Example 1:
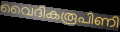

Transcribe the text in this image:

വൈദികരൂപിണി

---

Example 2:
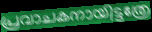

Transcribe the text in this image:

പ്രവാചകനായിട്ടത്രേ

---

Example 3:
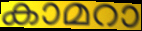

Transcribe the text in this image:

കാമറാ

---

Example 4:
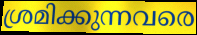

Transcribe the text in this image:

ശ്രമിക്കുന്നവരെ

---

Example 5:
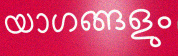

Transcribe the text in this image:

യാഗങ്ങളും